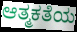
ಆತ್ಮಕತೆಯ